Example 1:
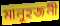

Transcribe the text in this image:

মানুহজনী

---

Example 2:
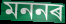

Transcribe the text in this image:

মননৰ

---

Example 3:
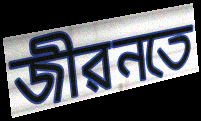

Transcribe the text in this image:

জীৱনতে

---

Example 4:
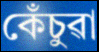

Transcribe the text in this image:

কেঁচুৱা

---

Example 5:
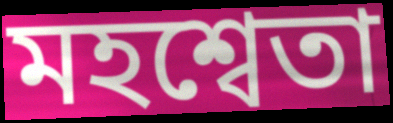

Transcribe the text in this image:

মহশ্বেতা